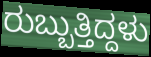
ರುಬ್ಬುತ್ತಿದ್ದಳು